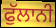
ਫੁੱਲਾਨੀ